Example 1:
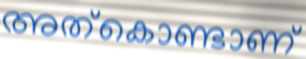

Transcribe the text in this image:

അത്കൊണ്ടാണ്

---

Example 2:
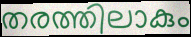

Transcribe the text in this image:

തരത്തിലാകും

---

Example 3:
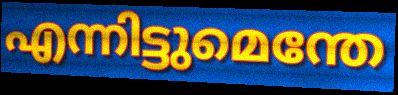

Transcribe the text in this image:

എന്നിട്ടുമെന്തേ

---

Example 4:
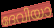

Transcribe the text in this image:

ദേവിയാ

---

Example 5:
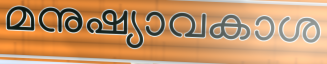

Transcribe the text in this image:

മനുഷ്യാവകാശ